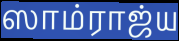
ஸாம்ராஜ்ய